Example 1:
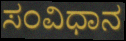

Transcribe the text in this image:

ಸಂವಿಧಾನ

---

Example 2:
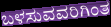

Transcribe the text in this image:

ಬಳಸುವವರಿಗಿಂತ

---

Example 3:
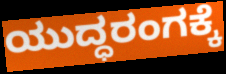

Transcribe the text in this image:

ಯುದ್ಧರಂಗಕ್ಕೆ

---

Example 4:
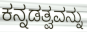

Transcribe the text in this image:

ಕನ್ನಡತ್ವವನ್ನು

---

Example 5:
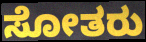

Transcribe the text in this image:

ಸೋತರು